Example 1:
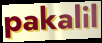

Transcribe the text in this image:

pakalil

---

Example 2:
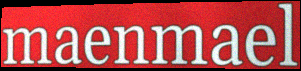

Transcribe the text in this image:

maenmael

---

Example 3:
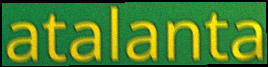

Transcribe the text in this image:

atalanta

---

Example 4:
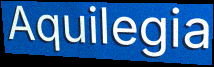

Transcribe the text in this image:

Aquilegia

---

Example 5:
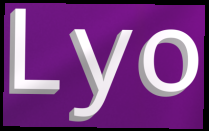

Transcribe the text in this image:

Lyo